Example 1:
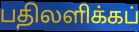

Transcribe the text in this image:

பதிலளிக்கப்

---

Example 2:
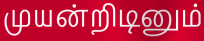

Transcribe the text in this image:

முயன்றிடினும்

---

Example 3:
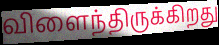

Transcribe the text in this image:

விளைந்திருக்கிறது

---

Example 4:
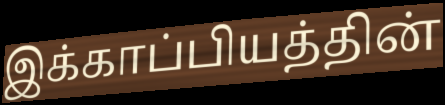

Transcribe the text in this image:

இக்காப்பியத்தின்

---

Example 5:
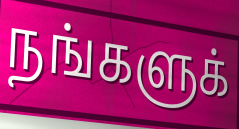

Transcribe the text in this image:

நங்களுக்